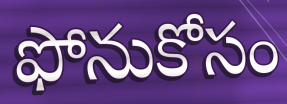
ఫోనుకోసం